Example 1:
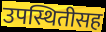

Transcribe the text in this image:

उपस्थितीसह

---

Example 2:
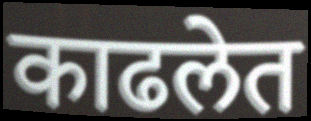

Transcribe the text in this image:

काढलेत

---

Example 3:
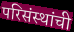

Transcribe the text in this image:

परिसंस्थांची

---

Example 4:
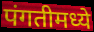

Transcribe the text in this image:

पंगतीमध्ये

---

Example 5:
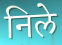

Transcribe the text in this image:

निले